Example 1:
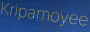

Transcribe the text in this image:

Kripamoyee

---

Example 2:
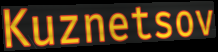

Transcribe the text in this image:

Kuznetsov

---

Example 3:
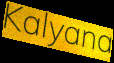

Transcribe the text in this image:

Kalyana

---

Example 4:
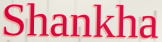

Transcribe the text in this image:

Shankha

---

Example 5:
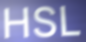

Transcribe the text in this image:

HSL